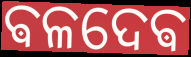
ଵଳଦେଵ